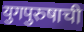
युगपुरुषाची